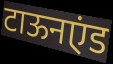
टाऊनएंड